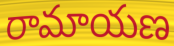
రామాయణ